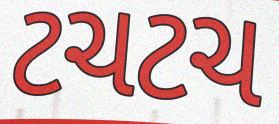
ટચટચ